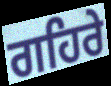
ਗਹਿਰੇ